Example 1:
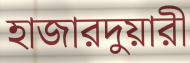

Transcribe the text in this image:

হাজারদুয়ারী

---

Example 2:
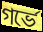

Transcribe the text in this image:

গর্ভে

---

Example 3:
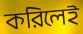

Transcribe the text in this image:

করিলেই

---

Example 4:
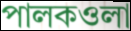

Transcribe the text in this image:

পালকওলা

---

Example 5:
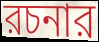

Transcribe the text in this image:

রচনার